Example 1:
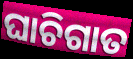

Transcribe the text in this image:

ଘାଚିଗାତ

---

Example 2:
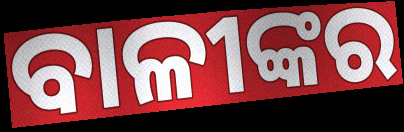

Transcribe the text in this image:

ବାଳୀଙ୍କର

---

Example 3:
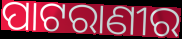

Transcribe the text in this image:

ପାଟରାଣୀର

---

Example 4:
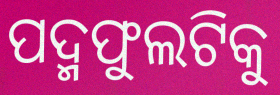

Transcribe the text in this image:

ପଦ୍ମଫୁଲଟିକୁ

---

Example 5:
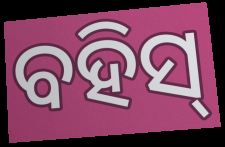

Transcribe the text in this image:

ବହିସ୍